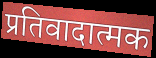
प्रतिवादात्मक